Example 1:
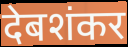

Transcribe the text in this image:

देबशंकर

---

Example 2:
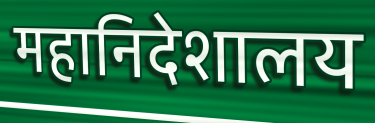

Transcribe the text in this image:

महानिदेशालय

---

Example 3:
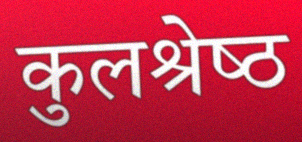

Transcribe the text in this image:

कुलश्रेष्‍ठ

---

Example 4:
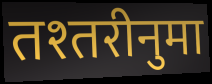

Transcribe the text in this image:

तश्तरीनुमा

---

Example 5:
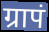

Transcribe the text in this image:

ग्रापं